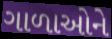
ગાળાઓને